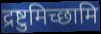
द्रष्टुमिच्छामि